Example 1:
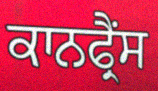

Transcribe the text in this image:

ਕਾਨਫ੍ਰੈਂਸ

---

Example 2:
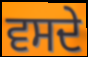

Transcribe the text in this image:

ਵਸਦੇ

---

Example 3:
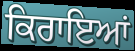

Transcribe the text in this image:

ਕਿਰਾਇਆਂ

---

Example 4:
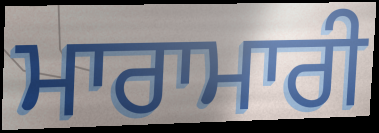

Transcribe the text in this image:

ਮਾਰਾਮਾਰੀ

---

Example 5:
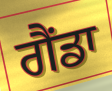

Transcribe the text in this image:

ਗੈਂਡਾ